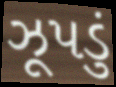
ઝૂપડું